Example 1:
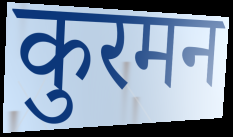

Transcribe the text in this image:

कुरमन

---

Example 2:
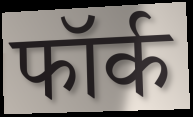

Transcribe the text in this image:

फॉर्क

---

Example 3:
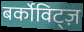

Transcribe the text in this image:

बर्कोविट्ज़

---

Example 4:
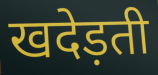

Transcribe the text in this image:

खदेड़ती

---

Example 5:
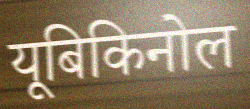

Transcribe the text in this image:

यूबिकिनोल